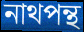
নাথপন্থ